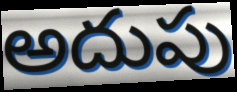
అదుపు